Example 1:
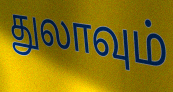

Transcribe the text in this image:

துலாவும்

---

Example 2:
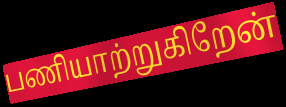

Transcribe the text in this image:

பணியாற்றுகிறேன்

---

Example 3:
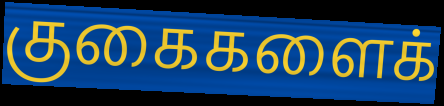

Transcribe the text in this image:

குகைகளைக்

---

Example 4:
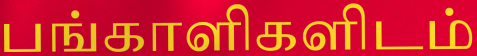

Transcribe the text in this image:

பங்காளிகளிடம்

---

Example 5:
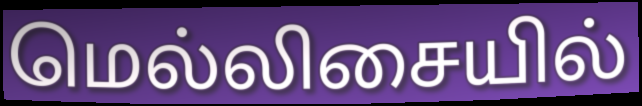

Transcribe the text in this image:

மெல்லிசையில்